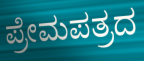
ಪ್ರೇಮಪತ್ರದ